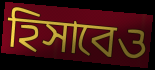
হিসাবেও